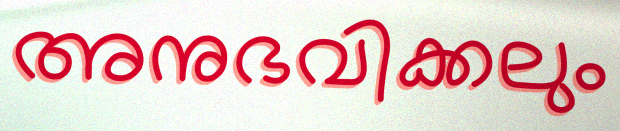
അനുഭവിക്കലും